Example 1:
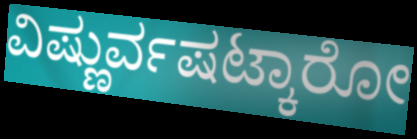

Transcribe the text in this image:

ವಿಷ್ಣುರ್ವಷಟ್ಕಾರೋ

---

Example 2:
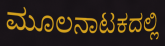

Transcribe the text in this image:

ಮೂಲನಾಟಕದಲ್ಲಿ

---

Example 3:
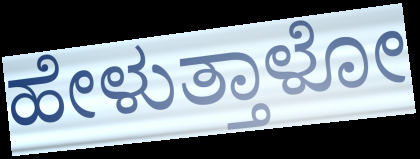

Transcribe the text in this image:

ಹೇಳುತ್ತಾಳೋ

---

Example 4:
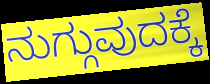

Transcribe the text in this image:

ನುಗ್ಗುವುದಕ್ಕೆ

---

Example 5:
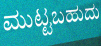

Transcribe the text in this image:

ಮುಟ್ಟಬಹುದು